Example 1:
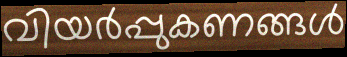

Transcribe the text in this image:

വിയർപ്പുകണങ്ങൾ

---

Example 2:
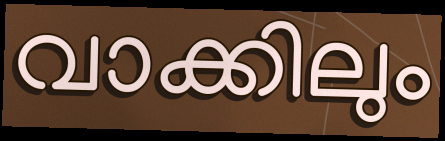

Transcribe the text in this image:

വാക്കിലും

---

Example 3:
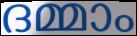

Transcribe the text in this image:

ദമ്മാം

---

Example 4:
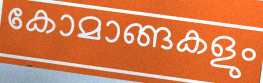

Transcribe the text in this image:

കോമാങ്ങകളും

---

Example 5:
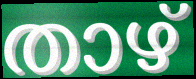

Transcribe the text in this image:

താഴ്